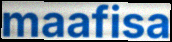
maafisa